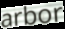
arbor